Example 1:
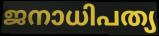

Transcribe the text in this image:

ജനാധിപത്യ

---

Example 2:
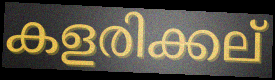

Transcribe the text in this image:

കളരിക്കല്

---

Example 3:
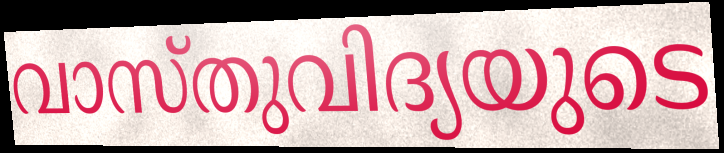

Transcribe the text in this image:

വാസ്തുവിദ്യയുടെ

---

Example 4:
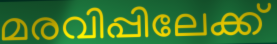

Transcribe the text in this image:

മരവിപ്പിലേക്ക്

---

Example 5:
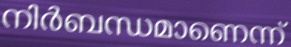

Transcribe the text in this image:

നിർബന്ധമാണെന്ന്